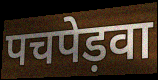
पचपेड़वा